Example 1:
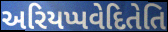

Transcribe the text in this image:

અરિયપ્પવેદિતેતિ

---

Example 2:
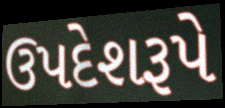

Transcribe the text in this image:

ઉપદેશરૂપે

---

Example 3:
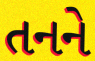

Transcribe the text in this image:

તનને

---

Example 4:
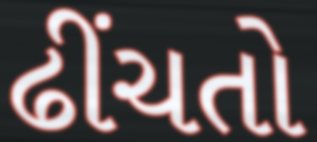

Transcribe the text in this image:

ઢીંચતો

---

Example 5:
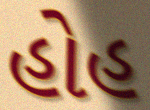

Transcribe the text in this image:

હોહ